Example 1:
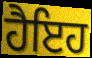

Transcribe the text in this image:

ਹੈਇਹ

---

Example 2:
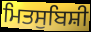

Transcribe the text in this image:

ਮਿਤਸੁਬਿਸ਼ੀ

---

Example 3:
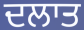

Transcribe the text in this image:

ਦਲਾਤ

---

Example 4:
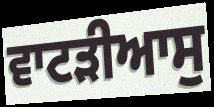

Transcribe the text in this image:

ਵਾਟੜੀਆਸੁ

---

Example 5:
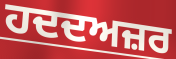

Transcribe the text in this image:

ਹਦਦਅਜ਼ਰ